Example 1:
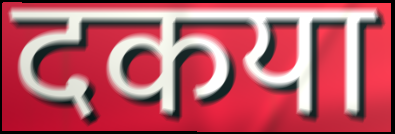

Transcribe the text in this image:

दकया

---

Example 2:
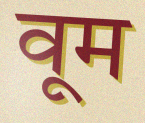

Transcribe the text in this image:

वूम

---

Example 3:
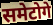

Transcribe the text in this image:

समेटोगे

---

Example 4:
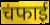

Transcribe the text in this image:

चंफाई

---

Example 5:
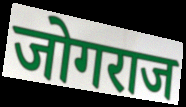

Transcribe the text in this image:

जोगराज